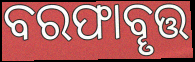
ବରଫାବୄତ୍ତ